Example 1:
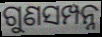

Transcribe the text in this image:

ଗୁଣସମ୍ପନ୍ନ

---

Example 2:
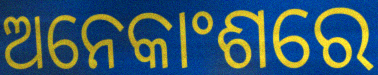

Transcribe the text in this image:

ଅନେକାଂଶରେ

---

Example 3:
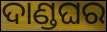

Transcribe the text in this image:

ଦାଣ୍ଡଘର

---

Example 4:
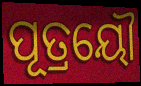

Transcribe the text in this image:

ପୂତ୍ରୟୌ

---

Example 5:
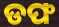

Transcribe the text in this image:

ଡଫ